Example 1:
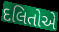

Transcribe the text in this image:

દલિતોએ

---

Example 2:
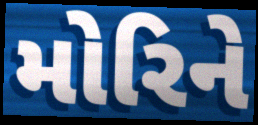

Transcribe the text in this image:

મોરિને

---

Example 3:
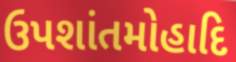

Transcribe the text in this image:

ઉપશાંતમોહાદિ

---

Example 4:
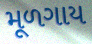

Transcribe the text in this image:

મૂળગાય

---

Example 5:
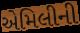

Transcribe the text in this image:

એમિલીની